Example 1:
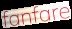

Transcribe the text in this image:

fanfare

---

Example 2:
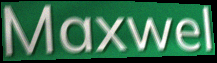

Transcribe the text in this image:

Maxwel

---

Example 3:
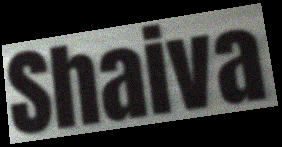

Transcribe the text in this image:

Shaiva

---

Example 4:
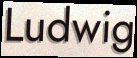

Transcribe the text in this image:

Ludwig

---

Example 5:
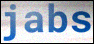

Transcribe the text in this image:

jabs